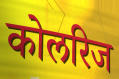
कोलरिज